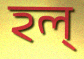
হল্